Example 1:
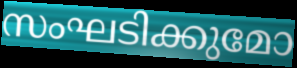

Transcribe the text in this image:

സംഘടിക്കുമോ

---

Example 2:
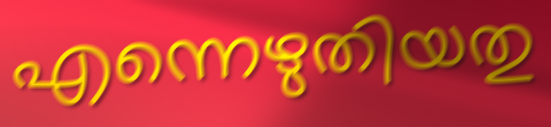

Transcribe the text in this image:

എന്നെഴുതിയതു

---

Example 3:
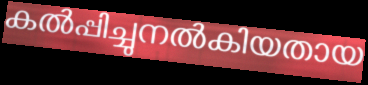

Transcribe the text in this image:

കൽപ്പിച്ചുനൽകിയതായ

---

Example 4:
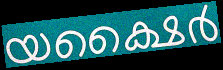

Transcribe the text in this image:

യക്ഷൈർ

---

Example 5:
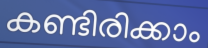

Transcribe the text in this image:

കണ്ടിരിക്കാം